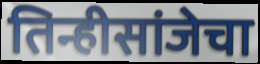
तिन्हीसांजेचा